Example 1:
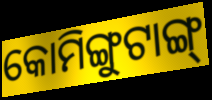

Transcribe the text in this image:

କୋମିଙ୍ଗୁଟାଙ୍ଗ୍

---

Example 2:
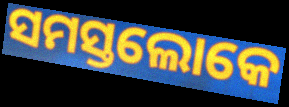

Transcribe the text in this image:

ସମସ୍ତଲୋକେ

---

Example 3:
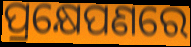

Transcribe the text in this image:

ପ୍ରକ୍ଷେପଣରେ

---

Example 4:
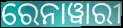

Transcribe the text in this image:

ରେନାୱାରୀ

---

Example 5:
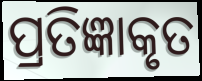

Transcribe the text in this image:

ପ୍ରତିଜ୍ଞାକୃତ